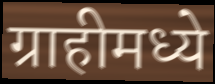
ग्राहीमध्ये